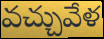
వచ్చువేళ